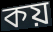
কয়